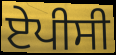
ਏਪੀਸੀ